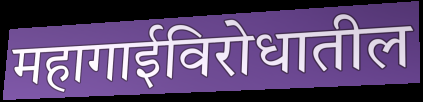
महागाईविरोधातील